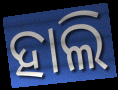
ହାଲି